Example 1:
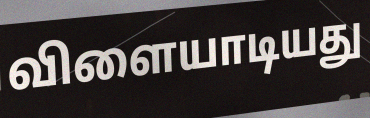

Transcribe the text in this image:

விளையாடியது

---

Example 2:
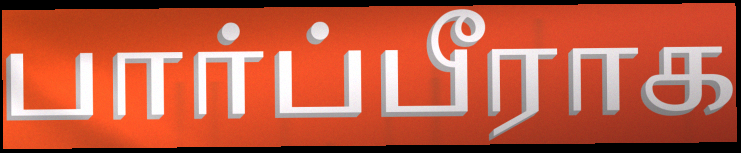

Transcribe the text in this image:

பார்ப்பீராக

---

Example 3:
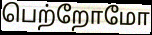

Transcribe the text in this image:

பெற்றோமோ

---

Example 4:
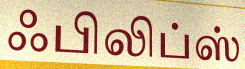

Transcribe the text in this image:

ஃபிலிப்ஸ்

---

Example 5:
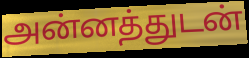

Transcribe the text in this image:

அன்னத்துடன்